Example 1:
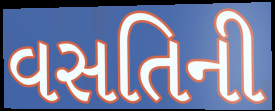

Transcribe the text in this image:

વસતિની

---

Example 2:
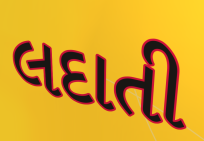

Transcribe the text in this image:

લદાતી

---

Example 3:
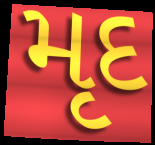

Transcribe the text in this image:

મૃદ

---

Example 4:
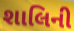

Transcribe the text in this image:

શાલિની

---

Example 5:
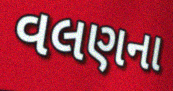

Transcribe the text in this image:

વલણના